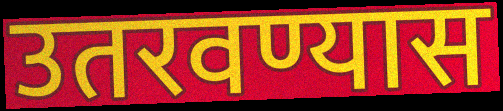
उतरवण्यास